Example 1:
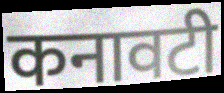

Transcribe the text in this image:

कनावटी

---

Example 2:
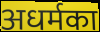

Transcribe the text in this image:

अधर्मका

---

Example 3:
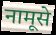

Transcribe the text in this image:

नामूसे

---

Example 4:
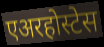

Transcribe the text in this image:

एअरहोस्टेस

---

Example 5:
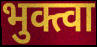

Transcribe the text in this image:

भुक्त्वा